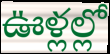
ఊళ్లల్లో